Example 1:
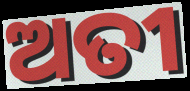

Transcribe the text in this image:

ଅତୀ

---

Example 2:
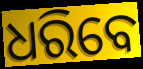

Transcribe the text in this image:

ଧରିବେ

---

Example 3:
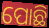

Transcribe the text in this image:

ପୋଛି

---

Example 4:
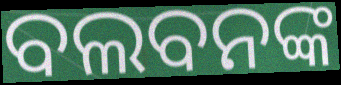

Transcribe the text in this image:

ବଲବନଙ୍କ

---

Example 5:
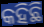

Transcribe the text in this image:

କହିଛି